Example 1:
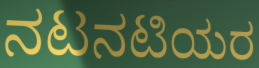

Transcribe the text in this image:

ನಟನಟಿಯರ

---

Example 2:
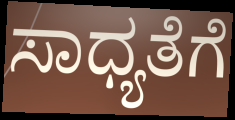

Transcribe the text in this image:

ಸಾಧ್ಯತೆಗೆ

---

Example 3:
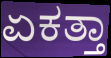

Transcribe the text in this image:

ಏಕತ್ತಾ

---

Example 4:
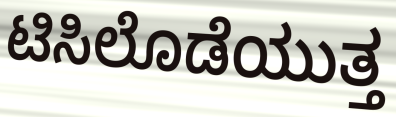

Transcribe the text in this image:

ಟಿಸಿಲೊಡೆಯುತ್ತ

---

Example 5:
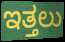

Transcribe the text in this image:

ಇತ್ತಲು